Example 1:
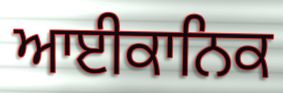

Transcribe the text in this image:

ਆਈਕਾਨਿਕ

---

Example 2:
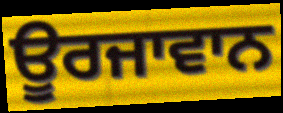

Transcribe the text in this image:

ਊਰਜਾਵਾਨ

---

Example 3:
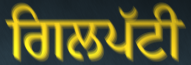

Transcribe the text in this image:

ਗਿਲਪੱਟੀ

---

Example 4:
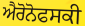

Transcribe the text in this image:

ਐਰੋਨੋਫਸਕੀ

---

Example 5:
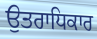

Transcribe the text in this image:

ਉਤਰਾਧਿਕਾਰ